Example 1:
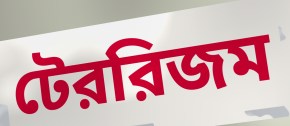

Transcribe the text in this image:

টেররিজম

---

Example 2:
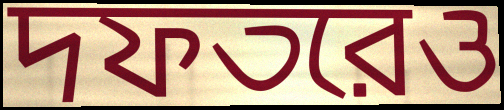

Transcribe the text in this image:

দফতরেও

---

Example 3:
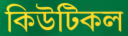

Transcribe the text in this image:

কিউটিকল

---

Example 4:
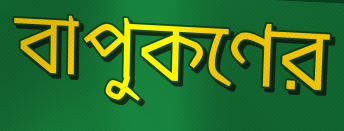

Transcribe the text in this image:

বাপুকণের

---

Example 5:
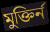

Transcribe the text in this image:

মুক্তির্ন